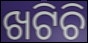
ଖଟିଚି